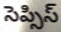
సెప్సిస్